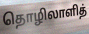
தொழிலாளித்